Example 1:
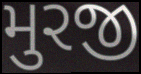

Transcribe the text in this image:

મુરજી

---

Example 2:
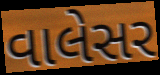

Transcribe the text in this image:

વાલેસર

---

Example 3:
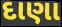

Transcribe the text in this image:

દાણા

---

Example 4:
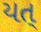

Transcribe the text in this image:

યત્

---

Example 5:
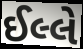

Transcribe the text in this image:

ઈલ્લે